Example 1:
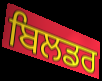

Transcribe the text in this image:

ਬਿਲਡਰ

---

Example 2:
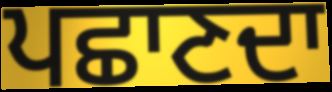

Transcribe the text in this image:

ਪਛਾਣਦਾ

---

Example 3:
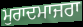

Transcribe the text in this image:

ਮੁਰਾਦਮਾਜਰਾ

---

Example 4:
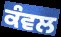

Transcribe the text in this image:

ਕੰਵਲ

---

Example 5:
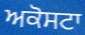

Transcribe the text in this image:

ਅਕੋਸਟਾ